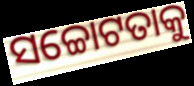
ସଚ୍ଚୋଟତାକୁ